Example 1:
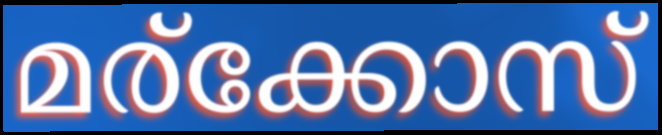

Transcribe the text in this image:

മര്ക്കോസ്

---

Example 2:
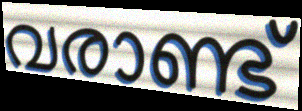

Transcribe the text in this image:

വരാണ്ട്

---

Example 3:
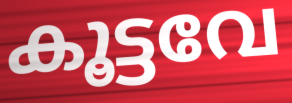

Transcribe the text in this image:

കൂട്ടവേ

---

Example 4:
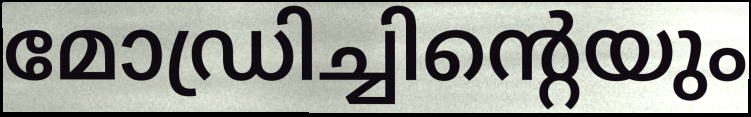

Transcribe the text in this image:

മോഡ്രിച്ചിന്റെയും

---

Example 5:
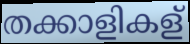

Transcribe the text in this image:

തക്കാളികള്